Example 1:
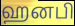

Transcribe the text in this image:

ஹனபி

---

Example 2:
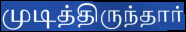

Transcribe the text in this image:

முடித்திருந்தார்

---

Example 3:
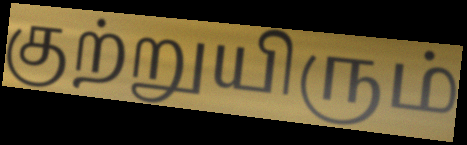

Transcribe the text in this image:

குற்றுயிரும்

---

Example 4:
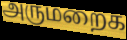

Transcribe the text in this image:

அருமறைக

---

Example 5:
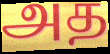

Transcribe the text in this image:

அத